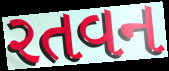
રતવન